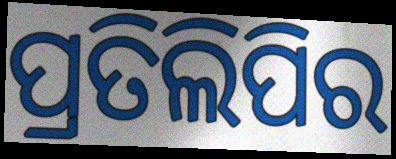
ପ୍ରତିଲିପିର